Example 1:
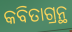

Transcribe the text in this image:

କବିତାଗ୍ରନ୍ଥ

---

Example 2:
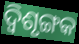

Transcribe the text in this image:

ଦ୍ବିଶୃଙ୍ଗକ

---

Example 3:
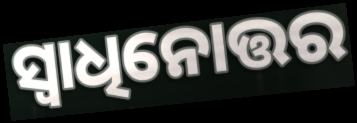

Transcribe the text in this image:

ସ୍ୱାଧିନୋତ୍ତର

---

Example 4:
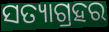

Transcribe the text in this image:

ସତ୍ୟାଗ୍ରହର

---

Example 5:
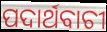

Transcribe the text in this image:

ପଦାର୍ଥବାଚୀ